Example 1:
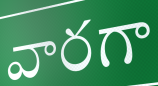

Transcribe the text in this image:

వారగా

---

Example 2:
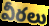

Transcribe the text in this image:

వీరలు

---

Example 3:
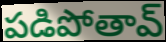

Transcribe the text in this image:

పడిపోతావ్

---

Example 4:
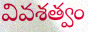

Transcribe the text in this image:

వివశత్వం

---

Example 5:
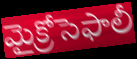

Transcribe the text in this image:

మైక్రోసెఫాలీ